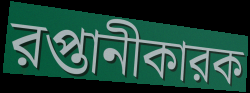
রপ্তানীকারক